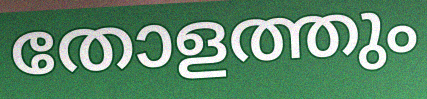
തോളത്തും